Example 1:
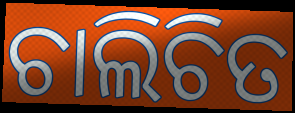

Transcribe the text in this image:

ଚାଲିଚିତ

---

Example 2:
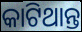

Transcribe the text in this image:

କାଟିଥାନ୍ତ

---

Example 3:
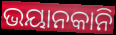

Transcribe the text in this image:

ଭୟାନକାନି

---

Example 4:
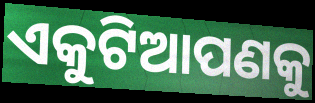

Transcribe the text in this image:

ଏକୁଟିଆପଣକୁ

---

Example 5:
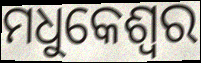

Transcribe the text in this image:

ମଧୁକେଶ୍ୱର